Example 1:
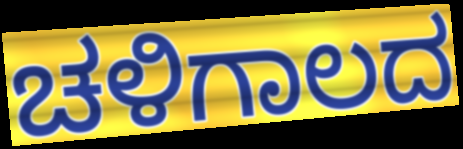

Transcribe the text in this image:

ಚಳಿಗಾಲದ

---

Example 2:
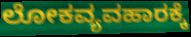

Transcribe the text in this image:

ಲೋಕವ್ಯವಹಾರಕ್ಕೆ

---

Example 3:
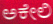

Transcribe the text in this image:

ಅಕೇಲಿ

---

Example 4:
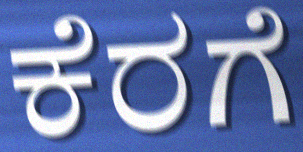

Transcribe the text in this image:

ಕೆರಗೆ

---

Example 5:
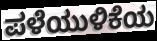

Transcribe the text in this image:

ಪಳೆಯುಳಿಕೆಯ